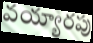
వయ్యారపు